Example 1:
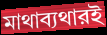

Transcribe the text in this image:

মাথাব্যথারই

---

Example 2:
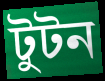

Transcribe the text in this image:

টুটন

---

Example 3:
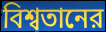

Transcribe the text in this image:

বিশ্বতানের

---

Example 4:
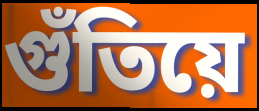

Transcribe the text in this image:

গুঁতিয়ে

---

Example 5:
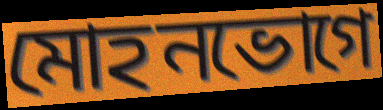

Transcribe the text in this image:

মোহনভোগে